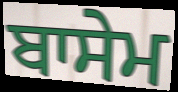
ਬਾਸੇਮ